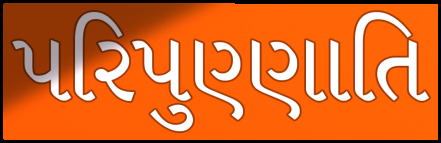
પરિપુણ્ણાતિ